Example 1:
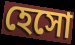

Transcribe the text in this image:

হেসো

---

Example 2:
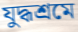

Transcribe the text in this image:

যুদ্ধশ্রমে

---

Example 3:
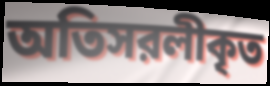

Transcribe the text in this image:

অতিসরলীকৃত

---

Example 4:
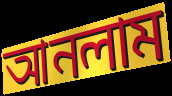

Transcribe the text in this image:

আনলাম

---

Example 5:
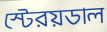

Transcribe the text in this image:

স্টেরয়ডাল